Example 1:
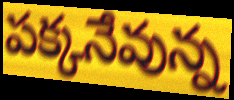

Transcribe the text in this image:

పక్కనేవున్న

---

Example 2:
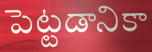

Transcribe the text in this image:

పెట్టడానికా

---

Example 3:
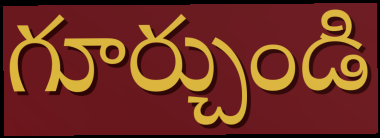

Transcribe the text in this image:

గూర్చుండి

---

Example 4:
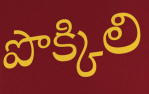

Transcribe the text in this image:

పొక్కిలి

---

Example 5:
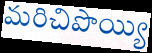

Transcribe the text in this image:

మరిచిపొయ్యి